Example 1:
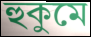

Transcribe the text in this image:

হুকুমে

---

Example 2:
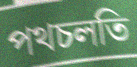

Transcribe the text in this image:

পথচলতি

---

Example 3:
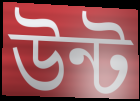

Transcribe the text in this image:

উন্ট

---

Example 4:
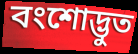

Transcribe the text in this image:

বংশোদ্ভুত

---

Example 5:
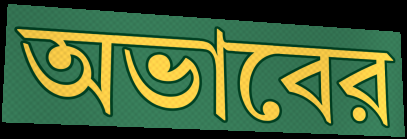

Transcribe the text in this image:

অভাবের